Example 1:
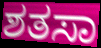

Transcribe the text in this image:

ಶತಸಾ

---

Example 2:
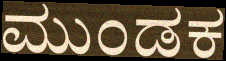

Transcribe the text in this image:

ಮುಂಡಕ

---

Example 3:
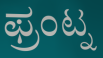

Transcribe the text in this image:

ಫ್ರಂಟ್ನ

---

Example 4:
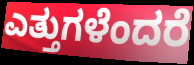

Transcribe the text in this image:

ಎತ್ತುಗಳೆಂದರೆ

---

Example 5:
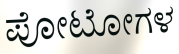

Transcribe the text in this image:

ಪೋಟೋಗಳ